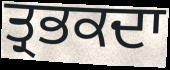
ਤ੍ਰਭਕਦਾ